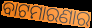
ବାଟମାରଣାର